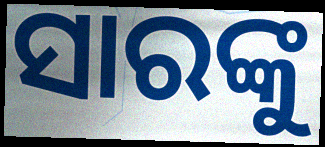
ସାରଙ୍କୁ